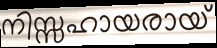
നിസ്സഹായരായ്